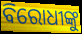
ବିରୋଧୀଙ୍କୁ